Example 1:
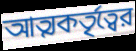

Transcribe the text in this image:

আত্মকর্তৃত্বের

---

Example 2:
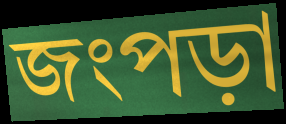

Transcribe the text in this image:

জংপড়া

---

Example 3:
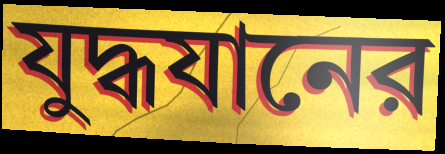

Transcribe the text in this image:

যুদ্ধযানের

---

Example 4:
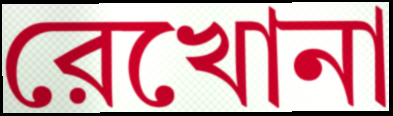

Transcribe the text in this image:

রেখোনা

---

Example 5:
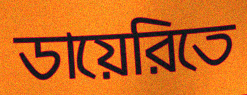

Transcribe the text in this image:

ডায়েরিতে